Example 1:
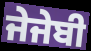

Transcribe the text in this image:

ਜੇਜੇਬੀ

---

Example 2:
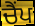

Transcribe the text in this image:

ਚੈਂਪ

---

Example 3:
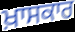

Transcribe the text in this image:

ਖ਼ਾਸਕਾਰ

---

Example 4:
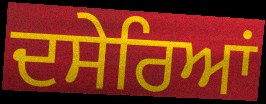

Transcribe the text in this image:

ਦਸੇਰਿਆਂ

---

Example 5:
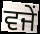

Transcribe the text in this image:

ਵਜੇਂ